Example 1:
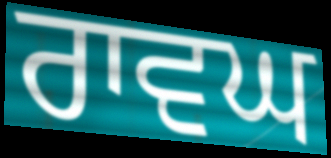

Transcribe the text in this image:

ਰਾਵਘ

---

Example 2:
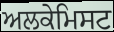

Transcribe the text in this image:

ਅਲਕੇਮਿਸਟ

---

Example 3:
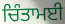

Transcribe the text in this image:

ਚਿੰਤਾਮਈ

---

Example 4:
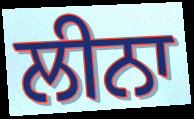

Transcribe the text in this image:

ਲੀਨਾ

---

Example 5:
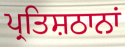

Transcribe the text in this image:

ਪ੍ਰਤਿਸ਼ਠਾਨਾਂ